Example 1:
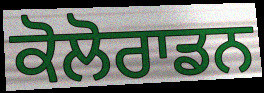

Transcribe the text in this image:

ਕੋਲੋਰਾਡਨ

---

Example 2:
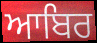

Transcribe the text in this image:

ਆਬਿਰ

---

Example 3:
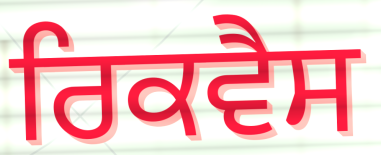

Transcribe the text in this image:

ਰਿਕਵੈਸ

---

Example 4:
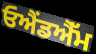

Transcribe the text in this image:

ਓਐਂਡਐੱਮ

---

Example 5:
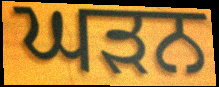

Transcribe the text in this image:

ਘੜਨ